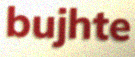
bujhte